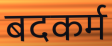
बदकर्म